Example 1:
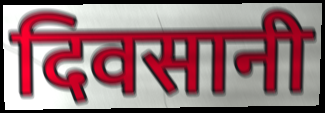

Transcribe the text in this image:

दिवसानी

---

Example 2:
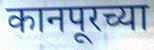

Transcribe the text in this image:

कानपूरच्या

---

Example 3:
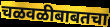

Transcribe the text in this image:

चळवळीबाबतचा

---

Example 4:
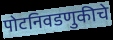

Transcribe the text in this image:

पोटनिवडणुकीचे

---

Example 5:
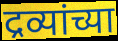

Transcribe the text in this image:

द्रव्यांच्या